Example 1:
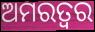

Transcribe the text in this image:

ଅମରତ୍ୱର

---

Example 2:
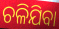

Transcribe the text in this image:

ଚଳିଯିବା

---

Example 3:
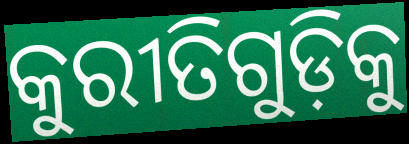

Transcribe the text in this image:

କୁରୀତିଗୁଡ଼ିକୁ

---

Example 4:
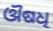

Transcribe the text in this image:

ଔଷଧି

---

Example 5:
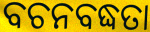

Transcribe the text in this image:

ବଚନବଦ୍ଧତା